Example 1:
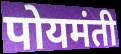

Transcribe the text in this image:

पोयमंती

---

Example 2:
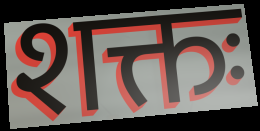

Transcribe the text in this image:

शक्तः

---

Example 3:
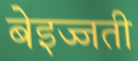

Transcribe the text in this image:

बेइज्‍जती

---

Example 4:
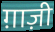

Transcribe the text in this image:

ग़ाज़ी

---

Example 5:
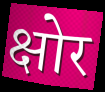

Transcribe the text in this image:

क्षोर